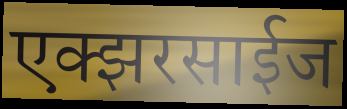
एक्झरसाईज